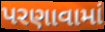
પરણાવામાં